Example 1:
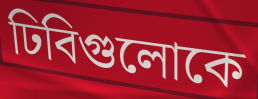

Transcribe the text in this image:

ঢিবিগুলোকে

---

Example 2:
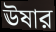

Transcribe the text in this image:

ঊষার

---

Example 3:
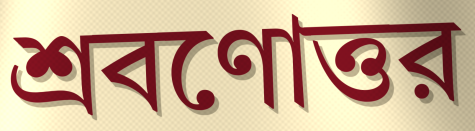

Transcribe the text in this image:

শ্রবণোত্তর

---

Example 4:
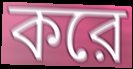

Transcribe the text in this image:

করে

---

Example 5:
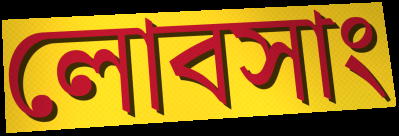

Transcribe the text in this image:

লোবসাং